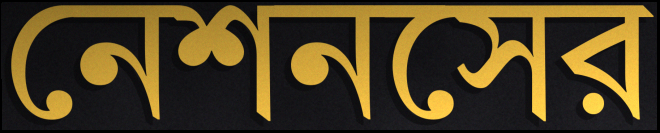
নেশনসের